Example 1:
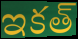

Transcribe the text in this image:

ఇకత్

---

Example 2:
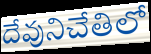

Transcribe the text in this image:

దేవునిచేతిలో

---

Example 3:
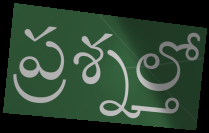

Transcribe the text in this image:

ప్రశ్నల్తో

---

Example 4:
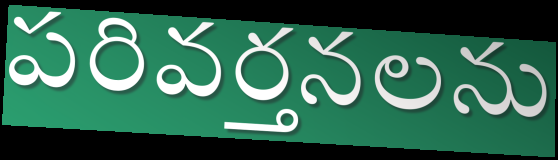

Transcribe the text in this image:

పరివర్తనలను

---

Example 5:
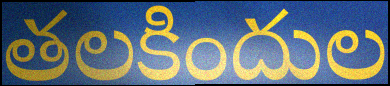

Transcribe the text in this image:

తలకిందుల